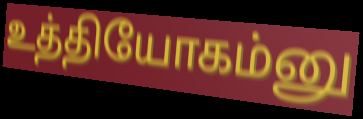
உத்தியோகம்னு